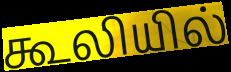
கூலியில்